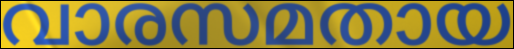
വാരസമതായ